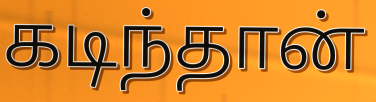
கடிந்தான்